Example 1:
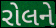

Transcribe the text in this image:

રોલને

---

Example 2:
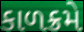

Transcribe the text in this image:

કાળક્રમે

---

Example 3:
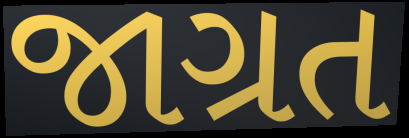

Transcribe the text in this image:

જાગ્રત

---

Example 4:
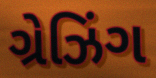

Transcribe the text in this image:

ગ્રેઝિંગ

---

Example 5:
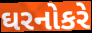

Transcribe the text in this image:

ઘરનોકરે